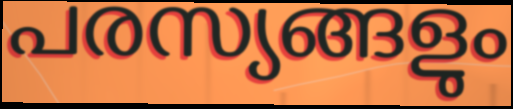
പരസ്യങ്ങളും